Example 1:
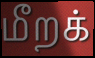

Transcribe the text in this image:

மீறக்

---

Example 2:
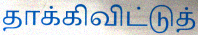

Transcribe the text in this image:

தாக்கிவிட்டுத்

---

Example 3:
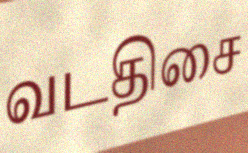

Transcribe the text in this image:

வடதிசை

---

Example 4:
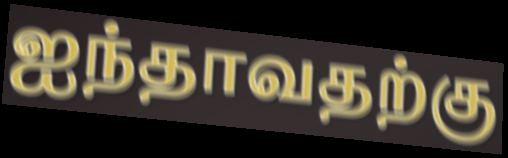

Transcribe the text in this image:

ஐந்தாவதற்கு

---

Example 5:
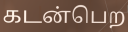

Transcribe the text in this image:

கடன்பெற